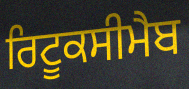
ਰਿਟੂਕਸੀਮੈਬ